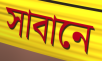
সাবানে